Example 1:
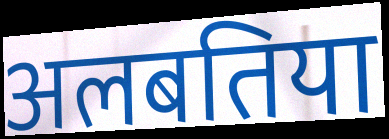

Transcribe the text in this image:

अलबतिया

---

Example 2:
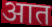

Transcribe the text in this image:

आत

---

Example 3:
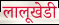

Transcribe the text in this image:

लालूखेडी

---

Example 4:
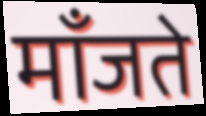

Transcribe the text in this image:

माँजते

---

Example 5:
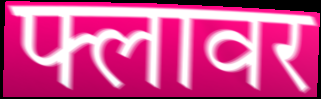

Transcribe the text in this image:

फ्लावर